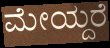
ಮೇಯ್ದರೆ